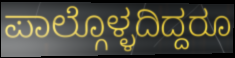
ಪಾಲ್ಗೊಳ್ಳದಿದ್ದರೂ